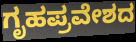
ಗೃಹಪ್ರವೇಶದ